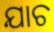
ଯାଚ